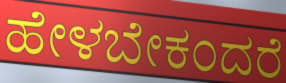
ಹೇಳಬೇಕಂದರೆ